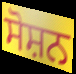
ਸੋਸ਼ਨ